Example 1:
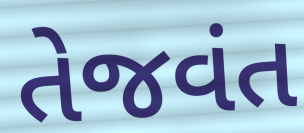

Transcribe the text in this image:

તેજવંત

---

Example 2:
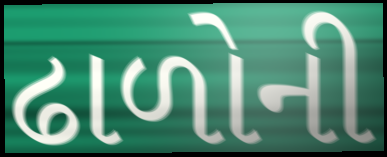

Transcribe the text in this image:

ઢાળોની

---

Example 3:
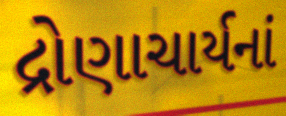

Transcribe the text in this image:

દ્રોણાચાર્યનાં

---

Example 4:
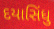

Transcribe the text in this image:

દયાસિંધુ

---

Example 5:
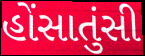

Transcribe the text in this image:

હોંસાતુંસી